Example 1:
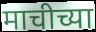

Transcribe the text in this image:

माचीच्या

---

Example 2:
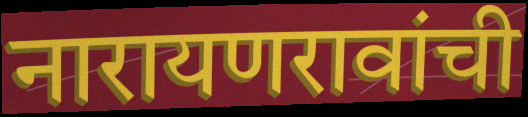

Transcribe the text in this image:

नारायणरावांची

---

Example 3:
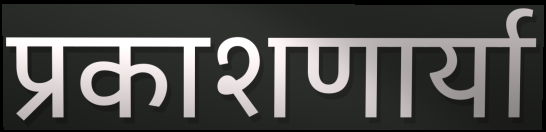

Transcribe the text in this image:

प्रकाशणार्या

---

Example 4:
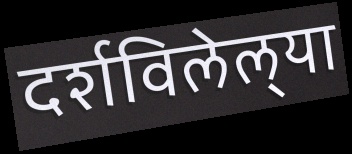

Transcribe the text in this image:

दर्शविलेल्या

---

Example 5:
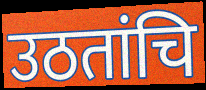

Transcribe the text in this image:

उठतांचि